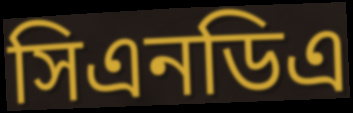
সিএনডিএ